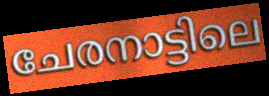
ചേരനാട്ടിലെ